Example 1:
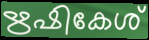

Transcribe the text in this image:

ഋഷികേശ്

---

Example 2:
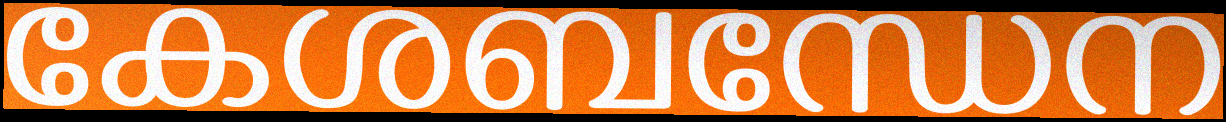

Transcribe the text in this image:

കേശബന്ധേന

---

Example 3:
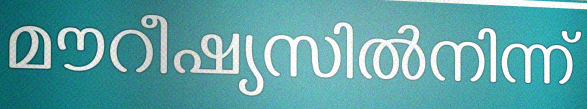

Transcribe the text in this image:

മൗറീഷ്യസിൽനിന്ന്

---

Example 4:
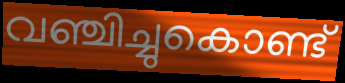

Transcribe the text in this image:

വഞ്ചിച്ചുകൊണ്ട്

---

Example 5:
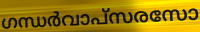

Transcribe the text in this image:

ഗന്ധർവാപ്സരസോ